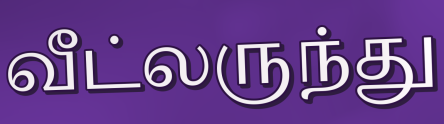
வீட்லருந்து